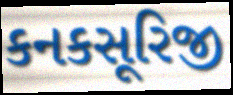
કનકસૂરિજી